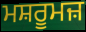
ਮਸ਼ਰੂਮਜ਼